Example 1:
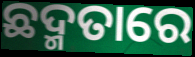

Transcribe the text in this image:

ଛଦ୍ମତାରେ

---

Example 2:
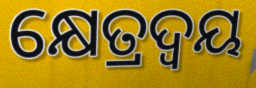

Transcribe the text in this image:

କ୍ଷେତ୍ରଦ୍ଵୟ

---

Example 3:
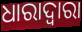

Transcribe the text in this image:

ଧାରାଦ୍ୱାରା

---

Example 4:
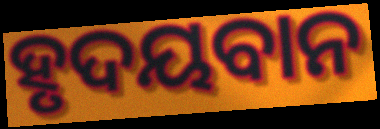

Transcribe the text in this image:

ହୃଦୟବାନ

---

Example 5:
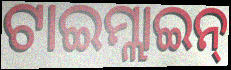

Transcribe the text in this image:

ଟାଇମ୍ଲାଇନ୍